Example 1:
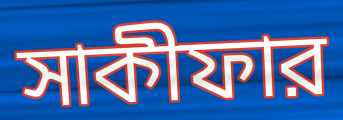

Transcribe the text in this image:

সাকীফার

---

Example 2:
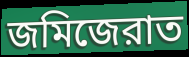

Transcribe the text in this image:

জমিজেরাত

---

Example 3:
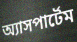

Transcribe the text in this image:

অ্যাসপার্টেম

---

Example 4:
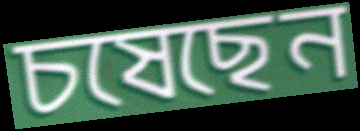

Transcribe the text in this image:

চষেছেন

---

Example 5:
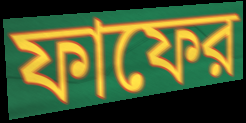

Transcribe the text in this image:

ফাফের